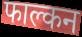
फाल्कन